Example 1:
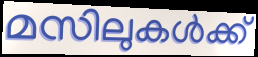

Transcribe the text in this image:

മസിലുകൾക്ക്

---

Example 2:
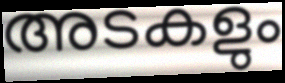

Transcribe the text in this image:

അടകളും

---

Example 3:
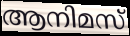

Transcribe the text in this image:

ആനിമസ്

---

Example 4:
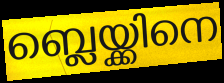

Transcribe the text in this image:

ബ്ലെയ്ക്കിനെ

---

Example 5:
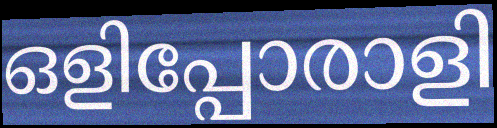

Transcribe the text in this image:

ഒളിപ്പോരാളി